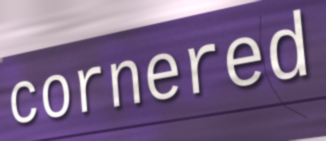
cornered